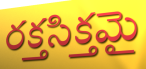
రక్తసిక్తమై